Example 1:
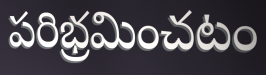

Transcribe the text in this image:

పరిభ్రమించటం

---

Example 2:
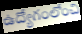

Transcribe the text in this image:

ఉద్యోగంలోంచి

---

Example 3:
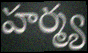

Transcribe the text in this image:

హర్మ్య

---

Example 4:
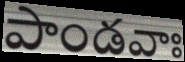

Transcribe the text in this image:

పాండవాః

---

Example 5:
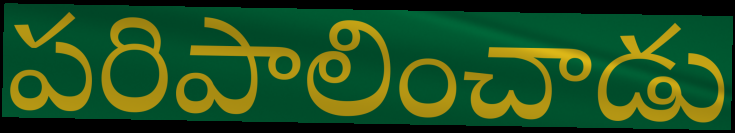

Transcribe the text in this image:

పరిపాలించాడు